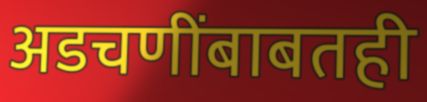
अडचणींबाबतही